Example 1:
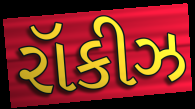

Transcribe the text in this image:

રૉકીઝ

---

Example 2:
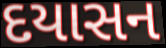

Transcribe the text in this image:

દયાસન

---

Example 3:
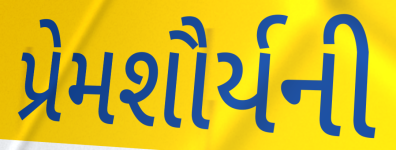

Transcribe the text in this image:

પ્રેમશૌર્યની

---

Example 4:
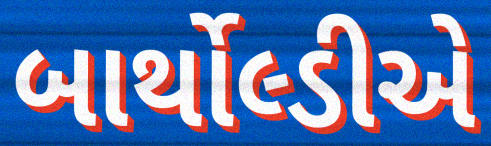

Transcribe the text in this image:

બાર્થોલ્ડીએ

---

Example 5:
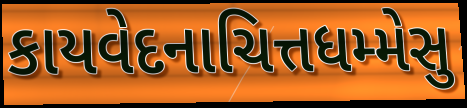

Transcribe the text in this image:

કાયવેદનાચિત્તધમ્મેસુ